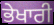
ਭੇਖਾਰੀ